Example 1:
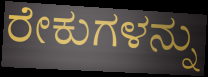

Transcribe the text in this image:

ರೇಕುಗಳನ್ನು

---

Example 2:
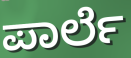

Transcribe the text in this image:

ಪಾರ್ಲೆ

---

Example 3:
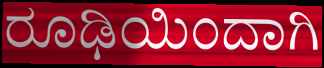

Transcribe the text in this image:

ರೂಢಿಯಿಂದಾಗಿ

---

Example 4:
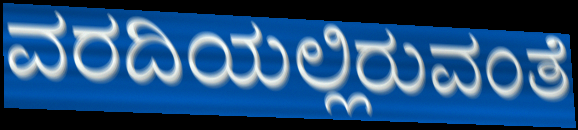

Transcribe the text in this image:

ವರದಿಯಲ್ಲಿರುವಂತೆ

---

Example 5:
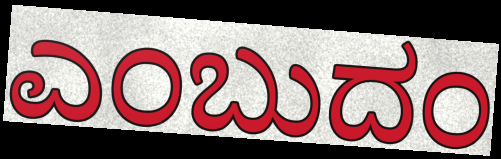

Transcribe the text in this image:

ಎಂಬುದಂ